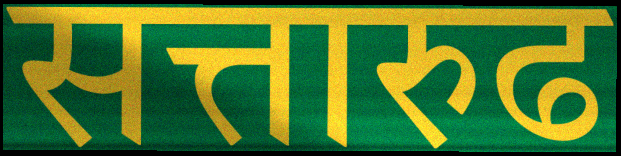
सत्तारुढ